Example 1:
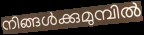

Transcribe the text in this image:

നിങ്ങൾക്കുമുമ്പിൽ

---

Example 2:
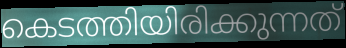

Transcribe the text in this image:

കെടത്തിയിരിക്കുന്നത്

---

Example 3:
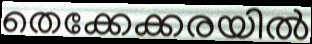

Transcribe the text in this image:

തെക്കേക്കരയിൽ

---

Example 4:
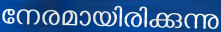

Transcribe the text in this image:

നേരമായിരിക്കുന്നു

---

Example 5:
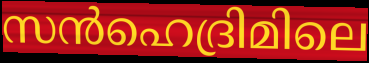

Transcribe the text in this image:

സൻഹെദ്രിമിലെ